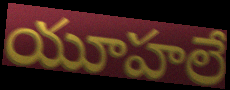
యూహలే